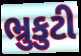
ભ્રુકુટી